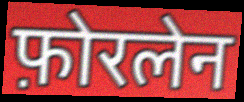
फ़ोरलेन